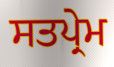
ਸਤਪ੍ਰੇਮ